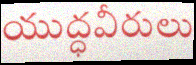
యుద్ధవీరులు